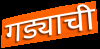
गड्याची